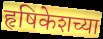
हृषिकेशच्या